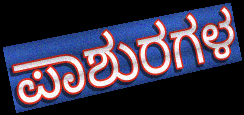
ಪಾಶುರಗಳ